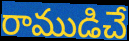
రాముడిచే